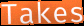
Takes